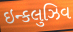
ઇન્કલુઝિવ